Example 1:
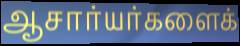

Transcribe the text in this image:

ஆசார்யர்களைக்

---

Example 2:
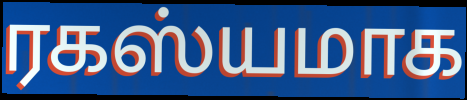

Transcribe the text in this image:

ரகஸ்யமாக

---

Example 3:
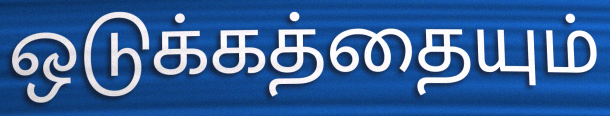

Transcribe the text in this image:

ஒடுக்கத்தையும்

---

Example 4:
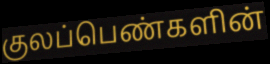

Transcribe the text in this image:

குலப்பெண்களின்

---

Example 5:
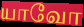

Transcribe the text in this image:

யாவோ